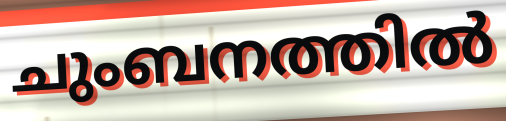
ചുംബനത്തിൽ